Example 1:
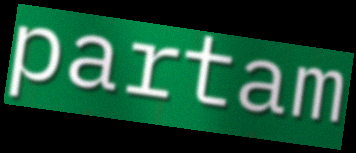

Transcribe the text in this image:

partam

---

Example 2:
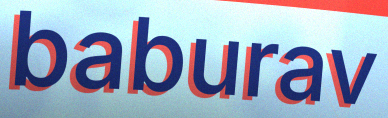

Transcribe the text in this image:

baburav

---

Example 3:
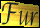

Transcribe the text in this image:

Fur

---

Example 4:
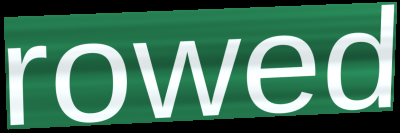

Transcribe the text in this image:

rowed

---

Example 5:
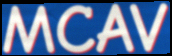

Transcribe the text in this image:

MCAV